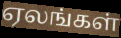
ஏலங்கள்